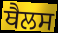
ਥੈਲਸ